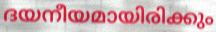
ദയനീയമായിരിക്കും